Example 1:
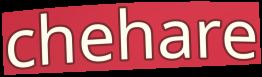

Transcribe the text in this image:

chehare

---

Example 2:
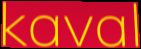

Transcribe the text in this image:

kaval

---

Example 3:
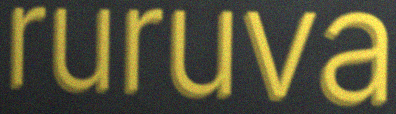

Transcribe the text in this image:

ruruva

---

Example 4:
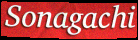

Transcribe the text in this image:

Sonagachi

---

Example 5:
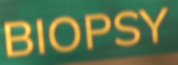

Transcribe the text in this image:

BIOPSY